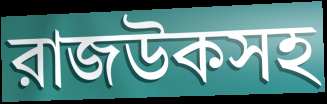
রাজউকসহ